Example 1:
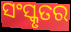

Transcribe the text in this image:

ସଂସ୍କୃତର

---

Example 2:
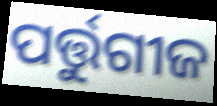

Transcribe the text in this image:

ପର୍ତ୍ତୁଗୀଜ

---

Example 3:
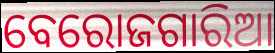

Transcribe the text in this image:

ବେରୋଜଗାରିଆ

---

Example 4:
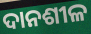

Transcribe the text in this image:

ଦାନଶୀଳ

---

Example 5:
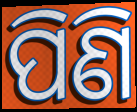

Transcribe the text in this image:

ପିଣି